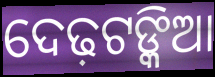
ଦେଢ଼ଟଙ୍କିଆ